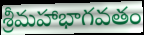
శ్రీమహాభాగవతం